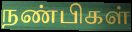
நண்பிகள்